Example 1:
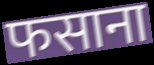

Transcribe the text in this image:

फसाना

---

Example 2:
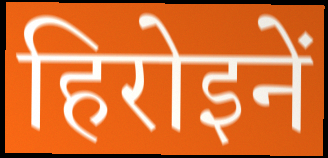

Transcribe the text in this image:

हिरोइनें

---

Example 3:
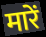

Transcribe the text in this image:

मारें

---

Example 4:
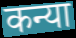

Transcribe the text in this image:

कन्या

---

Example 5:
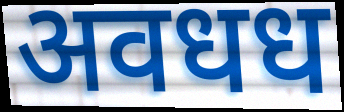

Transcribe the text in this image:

अवधध